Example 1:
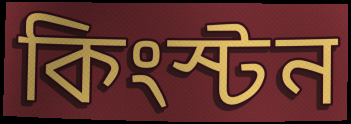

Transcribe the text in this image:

কিংস্টন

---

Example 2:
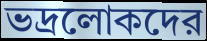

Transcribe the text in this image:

ভদ্রলোকদের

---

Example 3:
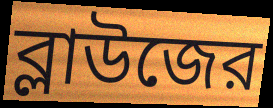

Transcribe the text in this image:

ব্লাউজের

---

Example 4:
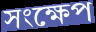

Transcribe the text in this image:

সংক্ষেপ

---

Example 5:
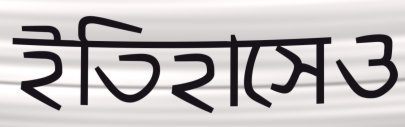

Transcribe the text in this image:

ইতিহাসেও